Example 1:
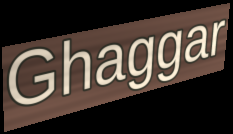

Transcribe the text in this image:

Ghaggar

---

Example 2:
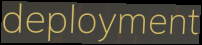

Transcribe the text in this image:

deployment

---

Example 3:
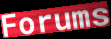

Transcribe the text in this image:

Forums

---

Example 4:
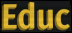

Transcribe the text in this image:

Educ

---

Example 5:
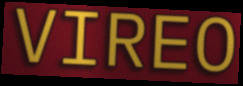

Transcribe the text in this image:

VIREO